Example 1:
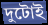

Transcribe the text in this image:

দুটোই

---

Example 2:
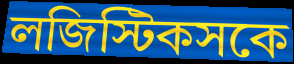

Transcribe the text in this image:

লজিস্টিকসকে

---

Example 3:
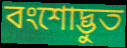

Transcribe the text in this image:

বংশোদ্ভুত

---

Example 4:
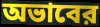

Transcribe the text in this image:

অভাবের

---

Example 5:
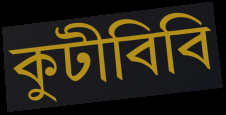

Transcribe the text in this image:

কুটীবিবি